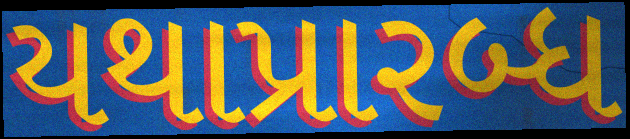
યથાપ્રારબ્ધ